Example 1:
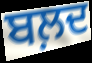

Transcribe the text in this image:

ਬਲ਼ਦ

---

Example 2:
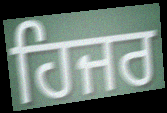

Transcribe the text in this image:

ਹਿਜਰ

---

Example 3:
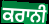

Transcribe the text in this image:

ਕਰਾਨੀ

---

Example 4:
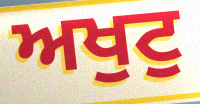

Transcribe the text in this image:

ਅਖੁਟੁ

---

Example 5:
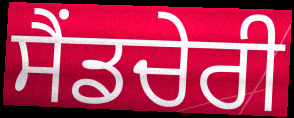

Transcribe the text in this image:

ਸੈਂਡਚੇਰੀ